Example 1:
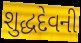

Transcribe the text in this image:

શુદ્ધદેવની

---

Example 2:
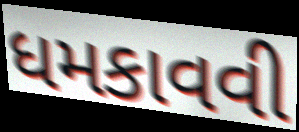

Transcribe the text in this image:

ધમકાવવી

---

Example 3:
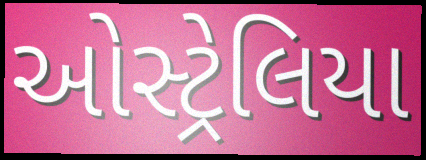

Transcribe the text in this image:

ઓસ્ટ્રેલિયા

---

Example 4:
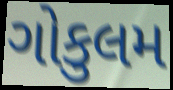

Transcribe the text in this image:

ગોકુલમ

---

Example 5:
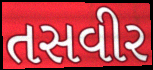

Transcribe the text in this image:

તસવીર